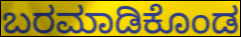
ಬರಮಾಡಿಕೊಂಡ